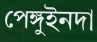
পেঙ্গুইনদা